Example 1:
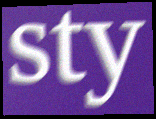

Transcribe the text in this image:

sty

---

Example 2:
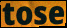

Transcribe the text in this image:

tose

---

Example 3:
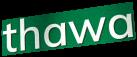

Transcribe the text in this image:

thawa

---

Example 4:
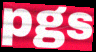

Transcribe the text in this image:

pgs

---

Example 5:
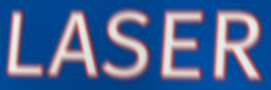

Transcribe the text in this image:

LASER